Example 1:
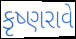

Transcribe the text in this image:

કૃષ્ણરાવે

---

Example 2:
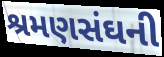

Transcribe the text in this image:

શ્રમણસંઘની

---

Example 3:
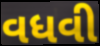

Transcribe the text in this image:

વધવી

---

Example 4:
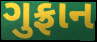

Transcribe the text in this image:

ગુફ્રાન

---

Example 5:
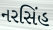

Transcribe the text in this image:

નરસિંહ